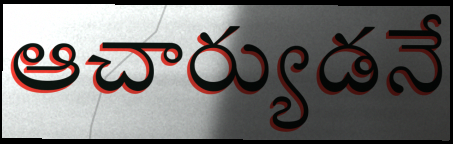
ఆచార్యుడనే